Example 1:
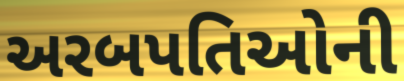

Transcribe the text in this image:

અરબપતિઓની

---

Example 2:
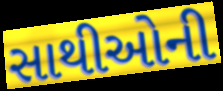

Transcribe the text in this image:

સાથીઓની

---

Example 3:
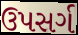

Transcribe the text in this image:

ઉપસર્ગ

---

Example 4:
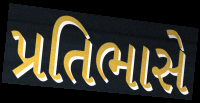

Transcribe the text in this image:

પ્રતિભાસે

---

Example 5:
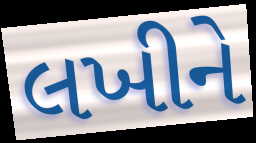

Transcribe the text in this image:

લખીને